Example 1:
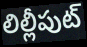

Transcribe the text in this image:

లిల్లీపుట్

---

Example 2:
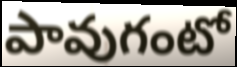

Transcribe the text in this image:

పావుగంటో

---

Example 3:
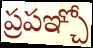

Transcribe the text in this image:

ప్రపఞ్చో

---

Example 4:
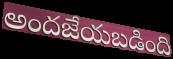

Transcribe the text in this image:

అందజేయబడింది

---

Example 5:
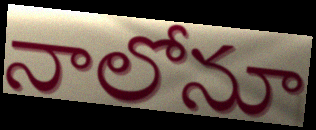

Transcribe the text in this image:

నాలోనూ